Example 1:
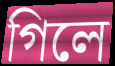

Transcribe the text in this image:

গিলে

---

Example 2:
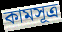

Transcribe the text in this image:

কামসূত্ৰ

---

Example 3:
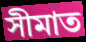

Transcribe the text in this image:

সীমাত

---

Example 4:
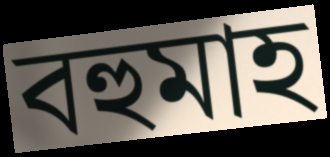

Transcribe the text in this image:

বহুমাহ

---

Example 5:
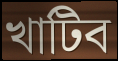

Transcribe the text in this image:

খাটিব